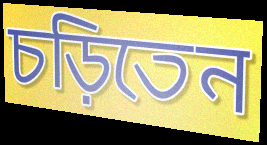
চড়িতেন